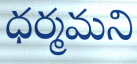
ధర్మమని